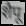
शैपू